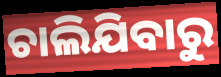
ଚାଲିଯିବାରୁ